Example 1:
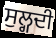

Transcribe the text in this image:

ਸੁਲ੍ਗਦੀ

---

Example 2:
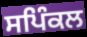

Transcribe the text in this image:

ਸਪਿੰਕਲ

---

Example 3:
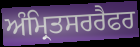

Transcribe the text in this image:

ਅੰਮ੍ਰਿਤਸਰਰੈਫਰ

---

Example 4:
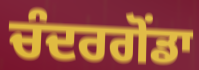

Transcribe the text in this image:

ਚੰਦਰਗੋਂਡਾ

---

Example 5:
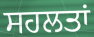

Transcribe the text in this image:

ਸਹਲਤਾਂ